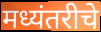
मध्यंतरीचे